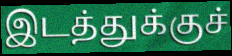
இடத்துக்குச்